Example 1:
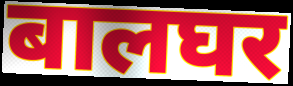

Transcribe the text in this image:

बालघर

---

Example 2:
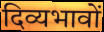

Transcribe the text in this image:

दिव्यभावों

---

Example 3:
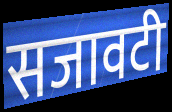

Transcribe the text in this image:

सजावटी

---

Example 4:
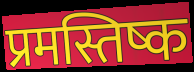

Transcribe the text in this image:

प्रमस्तिष्क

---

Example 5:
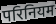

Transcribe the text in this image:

परिनियम